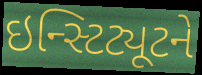
ઇન્સ્ટિટ્યૂટને